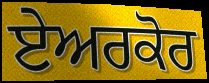
ਏਅਰਕੋਰ